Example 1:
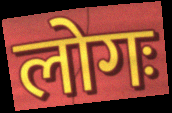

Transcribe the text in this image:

लोगः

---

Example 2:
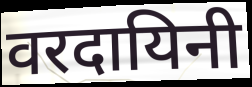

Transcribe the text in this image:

वरदायिनी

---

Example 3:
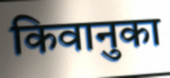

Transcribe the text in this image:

किवानुका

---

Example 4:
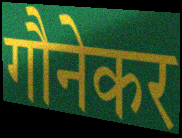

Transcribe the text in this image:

गौनेकर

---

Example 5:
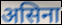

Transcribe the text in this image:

असिना